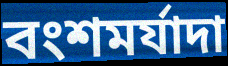
বংশমর্যাদা